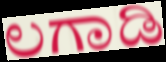
ಲಗಾಡಿ